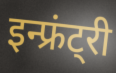
इन्फ्रंट्री